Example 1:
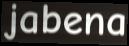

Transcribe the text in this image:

jabena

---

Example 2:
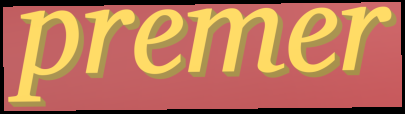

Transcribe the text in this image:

premer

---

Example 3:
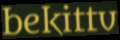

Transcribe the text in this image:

bekittu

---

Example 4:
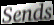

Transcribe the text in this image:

Sends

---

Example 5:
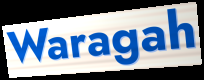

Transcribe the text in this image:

Waragah